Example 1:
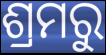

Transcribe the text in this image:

ଶ୍ରମରୁ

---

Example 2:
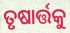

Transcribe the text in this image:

ତୃଷାର୍ତ୍ତକୁ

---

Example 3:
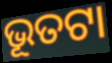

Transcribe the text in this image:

ଭୂତଟା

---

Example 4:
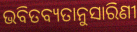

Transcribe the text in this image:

ଭବିତବ୍ୟତାନୁସାରିଣୀ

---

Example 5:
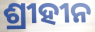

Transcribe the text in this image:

ଶ୍ରୀହୀନ